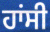
ਹਾਂਸੀ